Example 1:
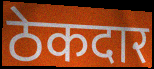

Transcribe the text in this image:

ठेकदार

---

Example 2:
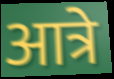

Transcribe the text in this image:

आत्रे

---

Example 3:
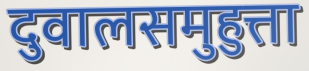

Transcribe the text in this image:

दुवालसमुहुत्ता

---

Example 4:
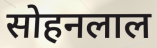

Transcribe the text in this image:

सोहनलाल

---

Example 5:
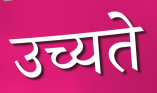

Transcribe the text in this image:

उच्यते